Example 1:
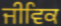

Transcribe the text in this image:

ਜੀਵਿਕ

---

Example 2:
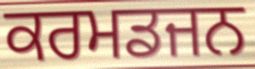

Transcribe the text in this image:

ਕਰਮਡਜਨ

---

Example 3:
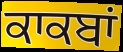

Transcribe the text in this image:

ਕਾਕਬਾਂ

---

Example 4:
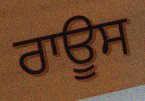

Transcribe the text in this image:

ਰਾਊਸ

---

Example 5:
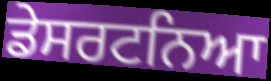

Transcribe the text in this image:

ਡੇਸਰਟਨਿਆ